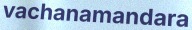
vachanamandara